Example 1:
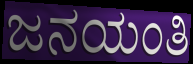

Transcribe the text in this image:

ಜನಯಂತಿ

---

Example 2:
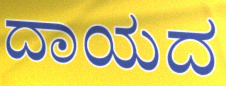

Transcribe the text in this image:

ದಾಯದ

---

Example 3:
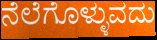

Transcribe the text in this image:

ನೆಲೆಗೊಳ್ಳುವದು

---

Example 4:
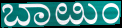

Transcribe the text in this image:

ಬಾೞುಂ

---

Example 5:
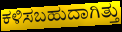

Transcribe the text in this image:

ಕಳಿಸಬಹುದಾಗಿತ್ತು